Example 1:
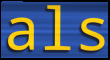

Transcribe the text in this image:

als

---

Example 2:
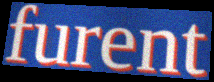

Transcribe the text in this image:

furent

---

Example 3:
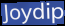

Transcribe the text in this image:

Joydip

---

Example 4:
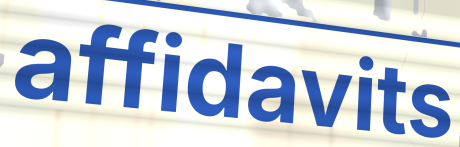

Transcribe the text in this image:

affidavits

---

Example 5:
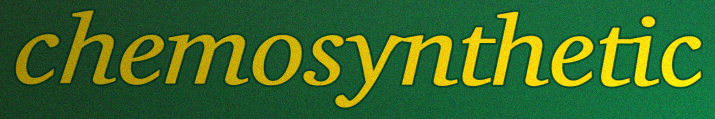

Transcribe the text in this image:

chemosynthetic